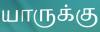
யாருக்கு